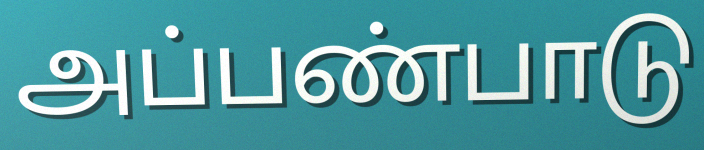
அப்பண்பாடு